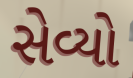
સેવ્યો